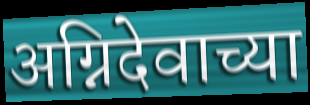
अग्निदेवाच्या